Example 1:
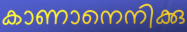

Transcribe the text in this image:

കാണാനെനിക്കു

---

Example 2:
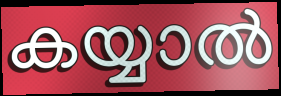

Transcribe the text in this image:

കയ്യാൽ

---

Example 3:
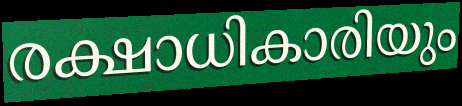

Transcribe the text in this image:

രക്ഷാധികാരിയും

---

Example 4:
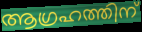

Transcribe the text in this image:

ആഗ്രഹത്തിന്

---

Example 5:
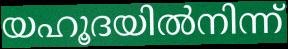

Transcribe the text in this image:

യഹൂദയിൽനിന്ന്